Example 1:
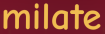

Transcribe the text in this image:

milate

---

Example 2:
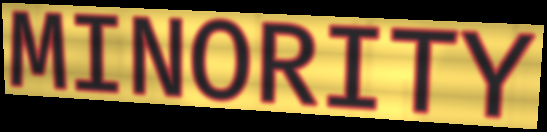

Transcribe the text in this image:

MINORITY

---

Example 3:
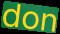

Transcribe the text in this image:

don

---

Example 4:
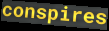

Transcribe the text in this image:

conspires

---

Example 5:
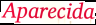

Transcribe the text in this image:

Aparecida